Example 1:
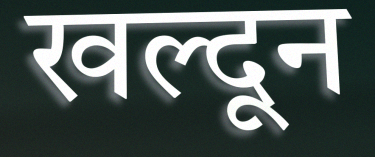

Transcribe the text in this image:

खल्दून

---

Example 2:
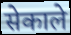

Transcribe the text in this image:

सेकाले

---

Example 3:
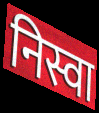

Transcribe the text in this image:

निस्वा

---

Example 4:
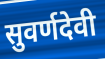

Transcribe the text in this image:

सुवर्णदेवी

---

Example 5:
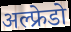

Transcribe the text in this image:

अल्फ्रेडो